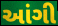
આંગી